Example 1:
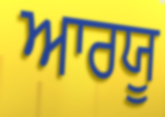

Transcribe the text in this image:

ਆਰਯੂ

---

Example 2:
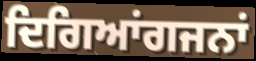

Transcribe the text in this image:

ਦਿਗਿਆਂਗਜਨਾਂ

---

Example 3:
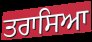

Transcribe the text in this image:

ਤਰਾਸਿਆ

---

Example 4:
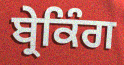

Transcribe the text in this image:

ਬ੍ਰੇਕਿੰਗ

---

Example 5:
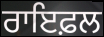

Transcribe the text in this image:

ਰਾਇਫ਼ਲ